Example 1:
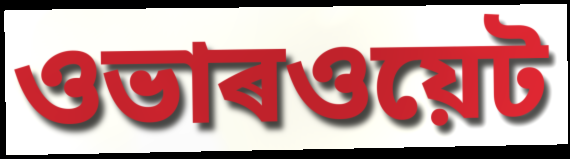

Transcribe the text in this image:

ওভাৰওয়েট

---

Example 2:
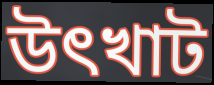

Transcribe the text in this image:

উৎখাট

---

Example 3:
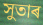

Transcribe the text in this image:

সুতাৰ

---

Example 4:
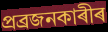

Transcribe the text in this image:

প্ৰব্ৰজনকাৰীৰ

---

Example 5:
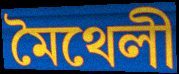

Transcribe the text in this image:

মৈথেলী